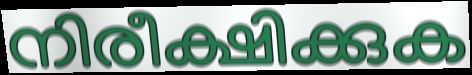
നിരീക്ഷിക്കുക